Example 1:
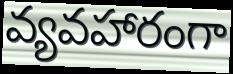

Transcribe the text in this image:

వ్యవహారంగా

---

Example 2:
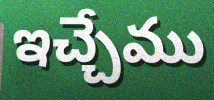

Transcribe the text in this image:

ఇచ్చేము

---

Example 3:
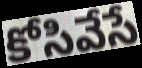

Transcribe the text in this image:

కోసివేసే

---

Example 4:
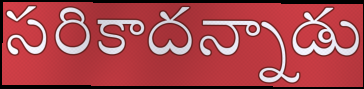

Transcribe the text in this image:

సరికాదన్నాడు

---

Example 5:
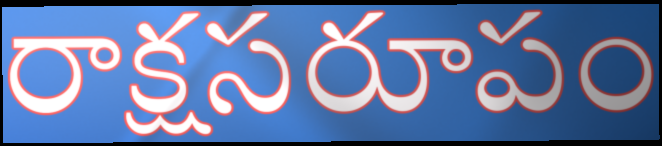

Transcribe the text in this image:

రాక్షసరూపం